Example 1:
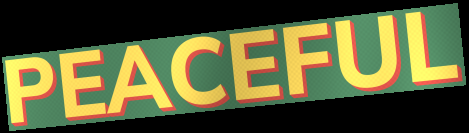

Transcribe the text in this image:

PEACEFUL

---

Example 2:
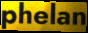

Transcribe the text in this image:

phelan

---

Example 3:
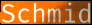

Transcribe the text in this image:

Schmid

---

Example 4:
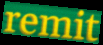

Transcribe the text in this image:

remit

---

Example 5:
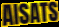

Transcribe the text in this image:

AISATS